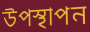
উপস্থাপন